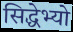
सिद्धेभ्यो